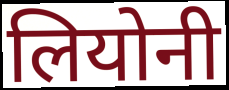
लियोनी